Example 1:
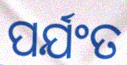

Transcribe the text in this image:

ପର୍ଯଂତ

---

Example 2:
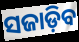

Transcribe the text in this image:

ସଜାଡ଼ିବ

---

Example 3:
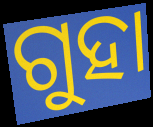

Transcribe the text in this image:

ଗୁହା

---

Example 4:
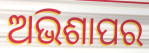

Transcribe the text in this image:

ଅଭିଶାପର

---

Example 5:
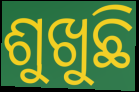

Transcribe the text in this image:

ଶୁଖୁଛି